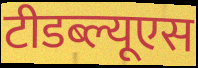
टीडब्ल्यूएस